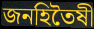
জনহিতৈষী